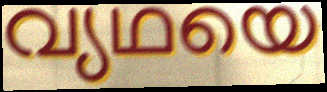
വ്യഥയെ